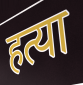
हत्या